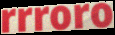
rrroro